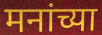
मनांच्या